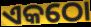
ଏକଠୋ